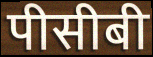
पीसीबी